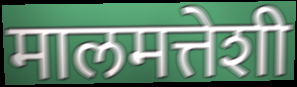
मालमत्तेशी